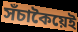
সঁচাকৈয়েই